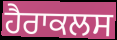
ਹੈਰਾਕਲਸ